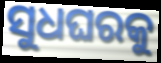
ସୁଧଘରକୁ